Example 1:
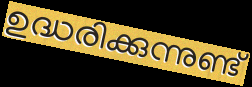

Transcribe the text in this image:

ഉദ്ധരിക്കുന്നുണ്ട്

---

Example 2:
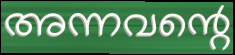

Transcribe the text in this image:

അന്നവന്റെ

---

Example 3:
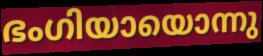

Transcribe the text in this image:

ഭംഗിയായൊന്നു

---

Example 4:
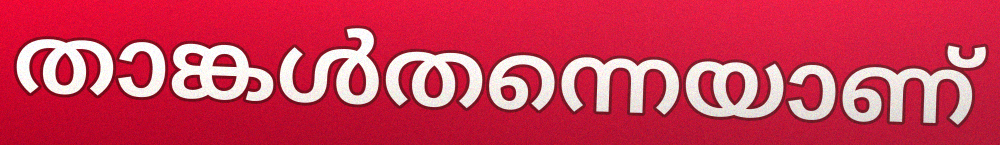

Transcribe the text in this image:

താങ്കൾതന്നെയാണ്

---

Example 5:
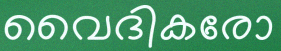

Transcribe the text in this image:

വൈദികരോ